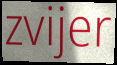
zvijer